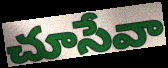
చూసేవా